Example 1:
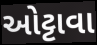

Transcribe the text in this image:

ઓટ્ટાવા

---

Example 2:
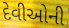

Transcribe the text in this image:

દેવીઓની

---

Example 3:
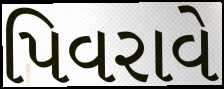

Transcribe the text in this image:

પિવરાવે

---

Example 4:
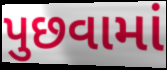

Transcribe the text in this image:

પુછવામાં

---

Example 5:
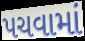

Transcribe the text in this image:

પચવામાં